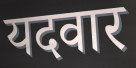
यदवार